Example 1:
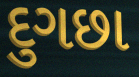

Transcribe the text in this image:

દુગછા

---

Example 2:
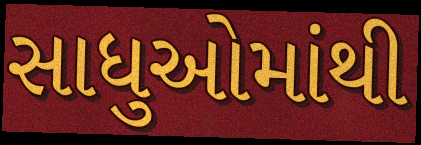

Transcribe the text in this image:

સાધુઓમાંથી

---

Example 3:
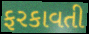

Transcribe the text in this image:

ફરકાવતી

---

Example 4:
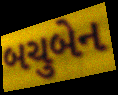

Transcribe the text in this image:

બચુબેન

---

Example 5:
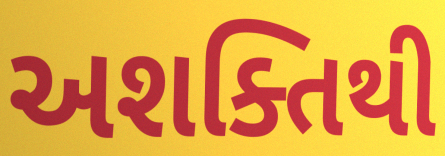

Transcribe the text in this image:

અશક્તિથી